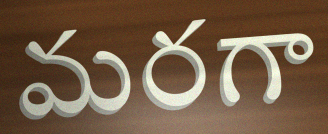
మరగా